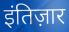
इंतिज़ार